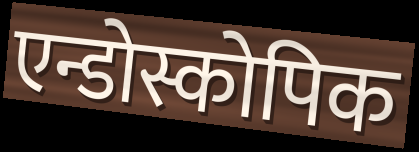
एन्डोस्कोपिक